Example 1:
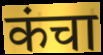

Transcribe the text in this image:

कंचा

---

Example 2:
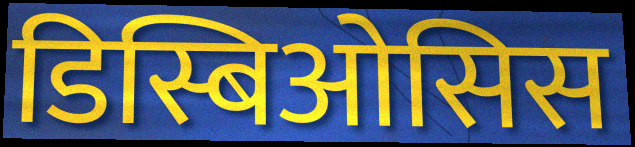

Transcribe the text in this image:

डिस्बिओसिस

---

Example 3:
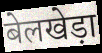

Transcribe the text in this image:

बेलखेड़ा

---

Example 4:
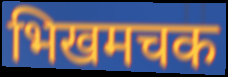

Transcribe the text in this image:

भिखमचक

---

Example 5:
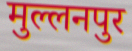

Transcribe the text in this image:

मुल्लनपुर